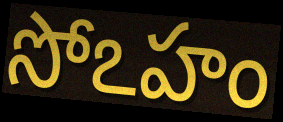
సోఽహం